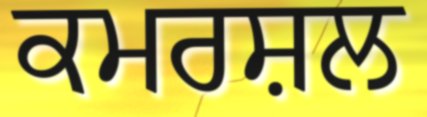
ਕਮਰਸ਼ਲ